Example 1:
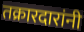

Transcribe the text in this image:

तक्रारदारांनी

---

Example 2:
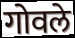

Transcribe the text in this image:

गोवले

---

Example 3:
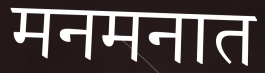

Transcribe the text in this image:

मनमनात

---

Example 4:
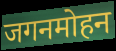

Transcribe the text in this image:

जगनमोहन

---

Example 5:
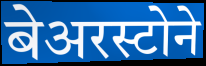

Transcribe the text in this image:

बेअरस्टोने